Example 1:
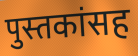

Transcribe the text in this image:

पुस्तकांसह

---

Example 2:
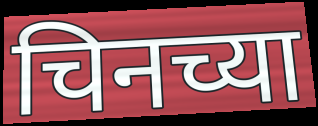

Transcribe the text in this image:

चिनच्या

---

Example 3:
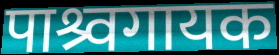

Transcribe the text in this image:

पाश्र्वगायक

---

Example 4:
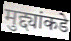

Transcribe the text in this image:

मुद्द्यांकडे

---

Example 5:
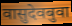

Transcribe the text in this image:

वासुदेवबुवा